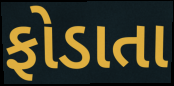
ફોડાતા